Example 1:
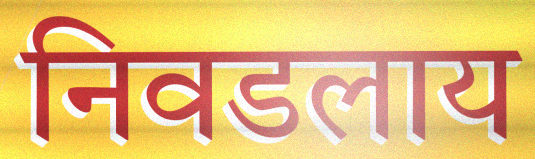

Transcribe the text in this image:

निवडलाय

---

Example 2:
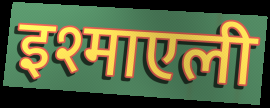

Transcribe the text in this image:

इश्माएली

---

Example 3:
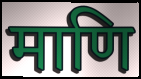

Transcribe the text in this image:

माणि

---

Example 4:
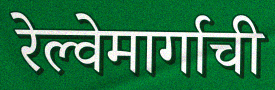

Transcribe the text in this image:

रेल्वेमार्गाची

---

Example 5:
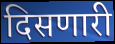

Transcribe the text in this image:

दिसणारी